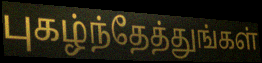
புகழ்ந்தேத்துங்கள்